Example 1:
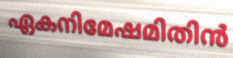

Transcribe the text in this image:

ഏകനിമേഷമിതിൻ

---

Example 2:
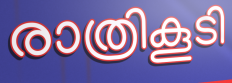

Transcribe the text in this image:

രാത്രികൂടി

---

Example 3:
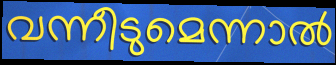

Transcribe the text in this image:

വന്നീടുമെന്നാൽ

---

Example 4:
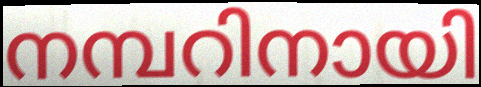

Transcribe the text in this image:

നമ്പറിനായി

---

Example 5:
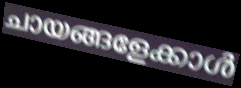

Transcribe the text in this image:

ചായങ്ങളേക്കാൾ